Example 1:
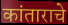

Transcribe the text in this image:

कांताराचे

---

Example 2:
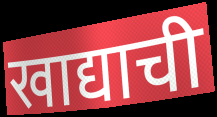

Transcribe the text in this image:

खाद्याची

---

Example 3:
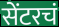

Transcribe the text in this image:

सेंटरचं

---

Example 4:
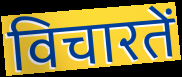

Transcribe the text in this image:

विचारतें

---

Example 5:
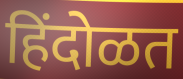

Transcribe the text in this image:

हिंदोळत